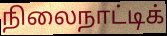
நிலைநாட்டிக்